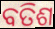
ବତିଶ